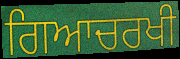
ਗਿਆਚਰਖੀ